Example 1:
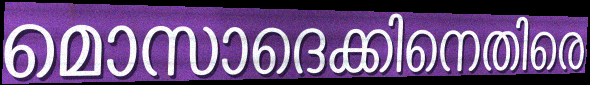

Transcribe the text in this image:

മൊസാദെക്കിനെതിരെ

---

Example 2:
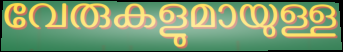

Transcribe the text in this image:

വേരുകളുമായുള്ള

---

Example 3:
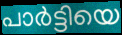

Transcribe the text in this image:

പാർട്ടിയെ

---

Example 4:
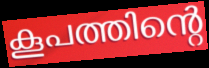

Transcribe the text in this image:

കൂപത്തിന്റെ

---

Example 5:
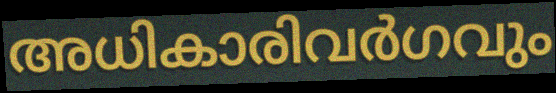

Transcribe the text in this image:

അധികാരിവർഗവും